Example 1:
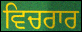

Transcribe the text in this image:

ਵਿਚਰਾਰ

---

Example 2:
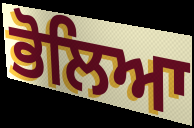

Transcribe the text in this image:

ਭੋਲਿਆ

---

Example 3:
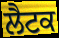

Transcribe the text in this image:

ਲੈਟਕ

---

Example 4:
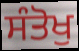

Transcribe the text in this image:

ਸੰਤੋਖੁ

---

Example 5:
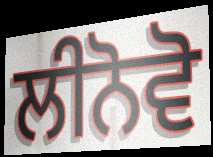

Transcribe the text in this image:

ਲੀਨੋਵੋ